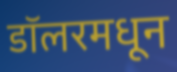
डॉलरमधून